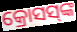
କ୍ରୋସସ୍‌ଙ୍କ